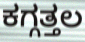
ಕಗ್ಗತ್ತಲ